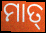
ମାତ୍